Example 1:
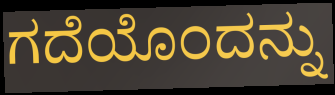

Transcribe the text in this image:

ಗದೆಯೊಂದನ್ನು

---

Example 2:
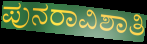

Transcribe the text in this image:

ಪುನರಾವಿಶಾತಿ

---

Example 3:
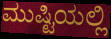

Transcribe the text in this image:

ಮುಷ್ಟಿಯಲ್ಲಿ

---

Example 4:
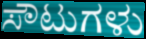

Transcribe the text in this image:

ಸೌಟುಗಳು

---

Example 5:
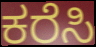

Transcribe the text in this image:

ಕರೆಸಿ